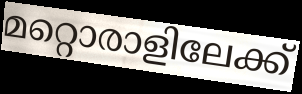
മറ്റൊരാളിലേക്ക്